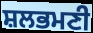
ਸ਼ਲਭਮਣੀ